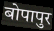
बोपापुर